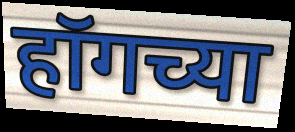
हॉगच्या